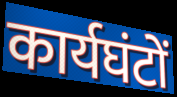
कार्यघंटों